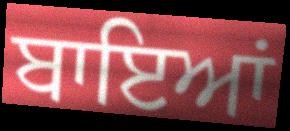
ਬਾਇਆਂ